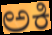
ಅಕಿ